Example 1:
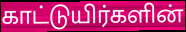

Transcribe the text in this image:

காட்டுயிர்களின்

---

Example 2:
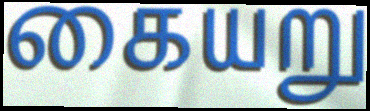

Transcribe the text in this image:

கையறு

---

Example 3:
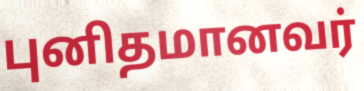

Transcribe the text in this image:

புனிதமானவர்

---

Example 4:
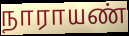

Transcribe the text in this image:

நாராயண்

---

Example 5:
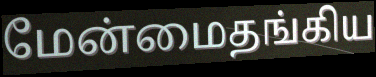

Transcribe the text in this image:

மேன்மைதங்கிய